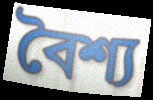
বৈশ্য